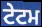
ਟੇਟਮ